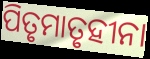
ପିତୃମାତୃହୀନା